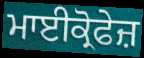
ਮਾਈਕ੍ਰੋਫੇਜ਼